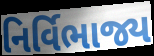
નિર્વિભાજ્ય